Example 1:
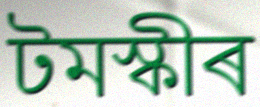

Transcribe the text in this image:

টমস্কীৰ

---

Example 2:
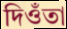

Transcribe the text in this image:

দিওঁতা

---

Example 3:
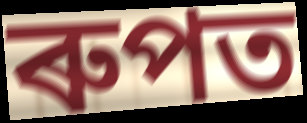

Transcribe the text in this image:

ৰুপত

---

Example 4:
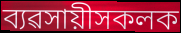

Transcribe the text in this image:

ব্যৱসায়ীসকলক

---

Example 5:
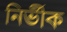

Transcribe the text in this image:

নিৰ্ভীক